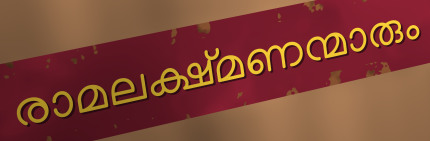
രാമലക്ഷ്മണന്മാരും